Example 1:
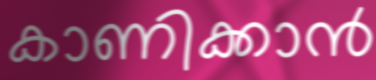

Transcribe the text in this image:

കാണിക്കാൻ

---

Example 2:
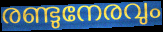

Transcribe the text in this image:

രണ്ടുനേരവും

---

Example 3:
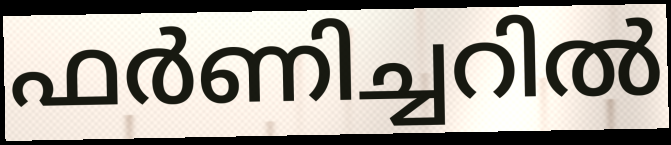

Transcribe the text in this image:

ഫർണിച്ചറിൽ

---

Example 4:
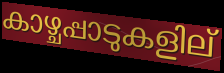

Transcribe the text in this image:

കാഴ്ചപ്പാടുകളില്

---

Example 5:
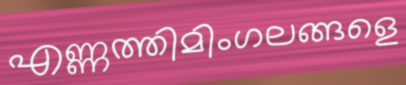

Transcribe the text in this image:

എണ്ണത്തിമിംഗലങ്ങളെ